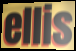
ellis